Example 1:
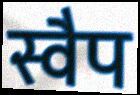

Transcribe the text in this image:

स्वैप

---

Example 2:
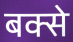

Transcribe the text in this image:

बक्से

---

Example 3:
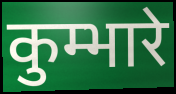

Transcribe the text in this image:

कुम्भारे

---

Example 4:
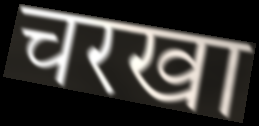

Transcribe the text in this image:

चरखा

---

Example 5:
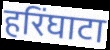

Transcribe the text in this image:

हरिंघाटा